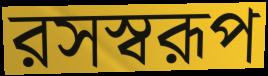
রসস্বরূপ